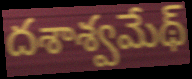
దశాశ్వమేథ్